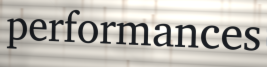
performances